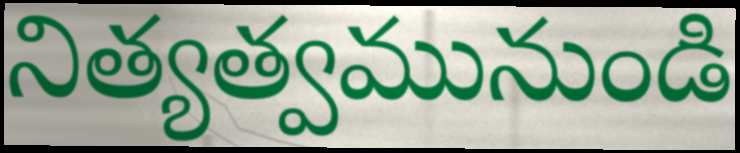
నిత్యత్వమునుండి